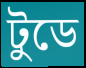
টুডে